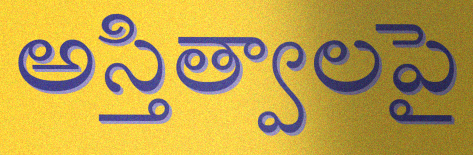
అస్తిత్వాలపై